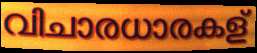
വിചാരധാരകള്